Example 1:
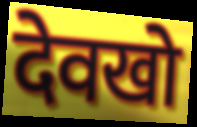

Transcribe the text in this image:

देवखो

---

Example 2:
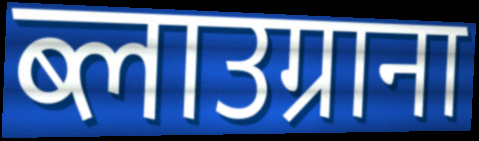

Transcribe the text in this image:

ब्लाउग्राना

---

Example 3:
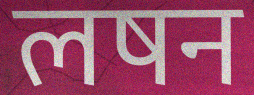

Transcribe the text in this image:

लषन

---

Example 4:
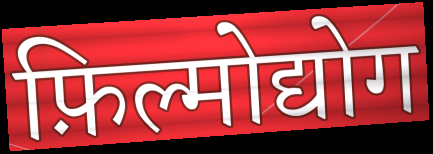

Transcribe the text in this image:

फ़िल्मोद्योग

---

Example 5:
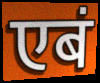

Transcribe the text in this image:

एबं